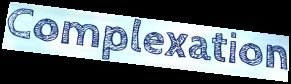
Complexation